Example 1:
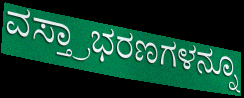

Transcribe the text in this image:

ವಸ್ತ್ರಾಭರಣಗಳನ್ನೂ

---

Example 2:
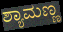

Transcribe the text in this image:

ಶ್ಯಾಮಣ್ಣ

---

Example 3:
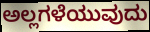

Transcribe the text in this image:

ಅಲ್ಲಗಳೆಯುವುದು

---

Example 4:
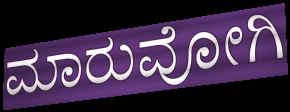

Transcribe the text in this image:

ಮಾರುವೋಗಿ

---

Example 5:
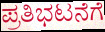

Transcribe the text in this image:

ಪ್ರತಿಭಟನೆಗೆ